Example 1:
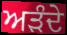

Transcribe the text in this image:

ਅੜੰਦੇ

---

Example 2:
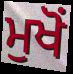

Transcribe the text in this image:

ਮੁਖੋਂ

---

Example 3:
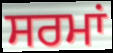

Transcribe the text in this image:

ਸਰਮਾਂ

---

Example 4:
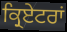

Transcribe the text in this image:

ਕ੍ਰਿਏਟਰਾਂ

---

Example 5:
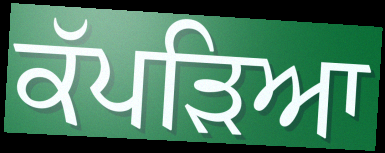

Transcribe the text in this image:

ਕੱਪੜਿਆ